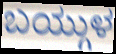
ಬಯ್ಗುಳ